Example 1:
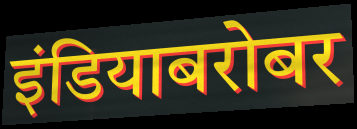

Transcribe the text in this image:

इंडियाबरोबर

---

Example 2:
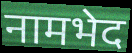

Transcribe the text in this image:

नामभेद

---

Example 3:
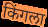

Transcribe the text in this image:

किंगला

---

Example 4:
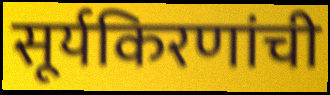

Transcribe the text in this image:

सूर्यकिरणांची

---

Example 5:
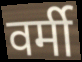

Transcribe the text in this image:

वर्मी